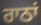
ਰਾਠਾਂ